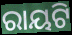
ରାୟଟି